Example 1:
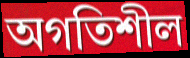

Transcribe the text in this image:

অগতিশীল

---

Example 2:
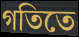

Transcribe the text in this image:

গতিতে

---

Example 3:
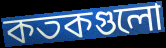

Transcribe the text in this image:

কতকগুলো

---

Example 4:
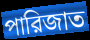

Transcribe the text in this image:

পারিজাত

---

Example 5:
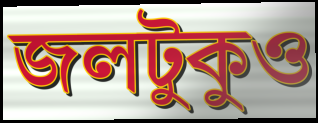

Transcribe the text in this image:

জলটুকুও